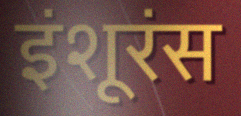
इंशूरंस